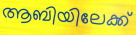
ആബിയിലേക്ക്